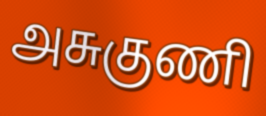
அசுகுணி